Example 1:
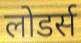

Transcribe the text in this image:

लोडर्स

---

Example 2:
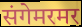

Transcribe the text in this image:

संगेमरमर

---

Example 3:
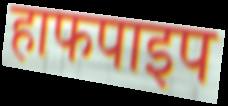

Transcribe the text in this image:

हाफपाइप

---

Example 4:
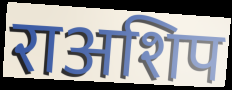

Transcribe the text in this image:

राअशिप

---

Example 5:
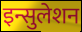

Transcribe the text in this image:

इन्सुलेशन